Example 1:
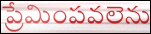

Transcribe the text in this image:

ప్రేమింపవలెను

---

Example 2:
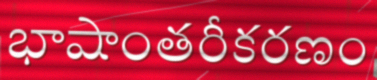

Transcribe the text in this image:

భాషాంతరీకరణం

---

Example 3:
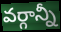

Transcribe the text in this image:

వర్గాన్నీ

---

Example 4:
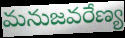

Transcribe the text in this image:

మనుజవరేణ్య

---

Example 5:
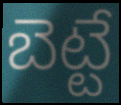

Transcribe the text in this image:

బెట్టే